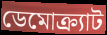
ডেমোক্র্যাট